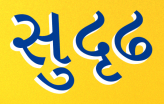
સુદૃઢ